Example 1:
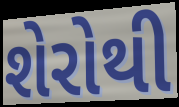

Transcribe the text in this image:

શેરોથી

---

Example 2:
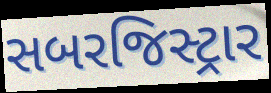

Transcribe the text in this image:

સબરજિસ્ટ્રાર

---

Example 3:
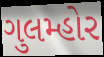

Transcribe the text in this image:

ગુલમ્હોર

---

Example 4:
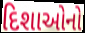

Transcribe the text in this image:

દિશાઓનો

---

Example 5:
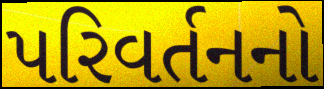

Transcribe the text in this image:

પરિવર્તનનો